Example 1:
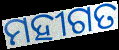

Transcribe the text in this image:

ମହୀଗତ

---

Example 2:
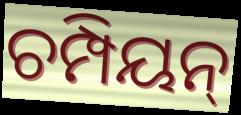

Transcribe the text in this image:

ଚମ୍ପିୟନ୍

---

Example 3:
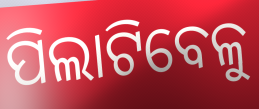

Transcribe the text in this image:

ପିଲାଟିବେଳୁ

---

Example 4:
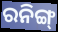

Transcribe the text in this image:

ରନିଙ୍ଗ୍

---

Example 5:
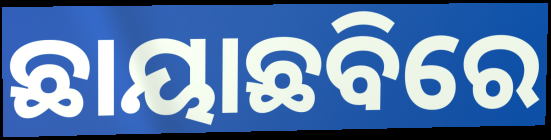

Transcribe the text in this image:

ଛାୟାଛବିରେ